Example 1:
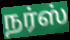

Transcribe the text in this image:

நர்ஸ்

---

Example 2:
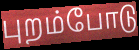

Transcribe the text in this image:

புறம்போடு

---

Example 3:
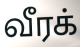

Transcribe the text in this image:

வீரக்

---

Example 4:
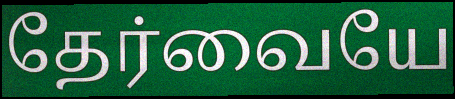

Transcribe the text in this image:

தேர்வையே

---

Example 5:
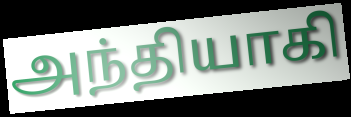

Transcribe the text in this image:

அந்தியாகி